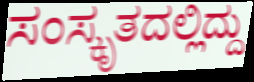
ಸಂಸ್ಕೃತದಲ್ಲಿದ್ದು